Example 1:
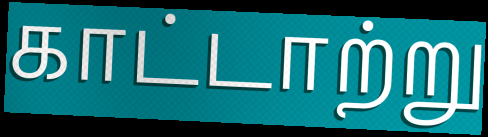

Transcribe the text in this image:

காட்டாற்று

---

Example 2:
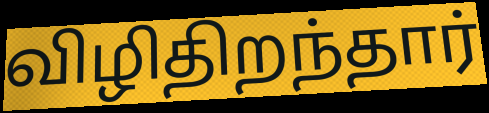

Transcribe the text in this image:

விழிதிறந்தார்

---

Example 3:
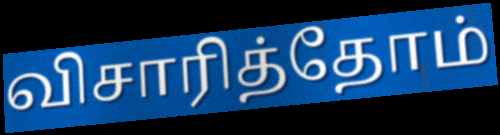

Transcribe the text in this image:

விசாரித்தோம்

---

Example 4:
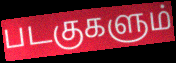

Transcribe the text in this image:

படகுகளும்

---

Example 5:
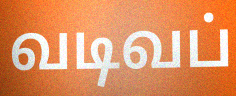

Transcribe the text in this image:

வடிவப்